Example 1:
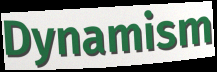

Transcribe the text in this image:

Dynamism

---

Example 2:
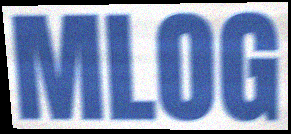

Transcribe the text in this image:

MLOG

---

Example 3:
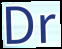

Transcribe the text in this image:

Dr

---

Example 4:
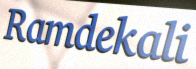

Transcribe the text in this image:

Ramdekali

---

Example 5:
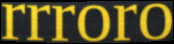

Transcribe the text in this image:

rrroro